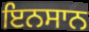
ਇਨਸਾਨ